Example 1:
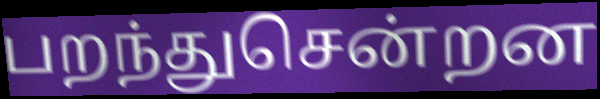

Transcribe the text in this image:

பறந்துசென்றன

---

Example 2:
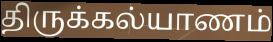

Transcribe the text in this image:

திருக்கல்யாணம்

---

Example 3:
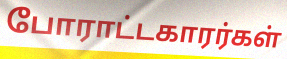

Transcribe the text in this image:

போராட்டகாரர்கள்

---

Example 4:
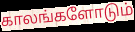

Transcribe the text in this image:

காலங்களோடும்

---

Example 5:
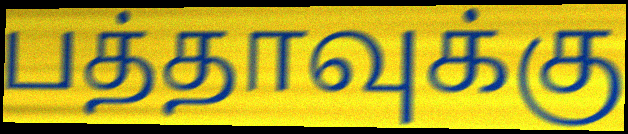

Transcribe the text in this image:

பத்தாவுக்கு